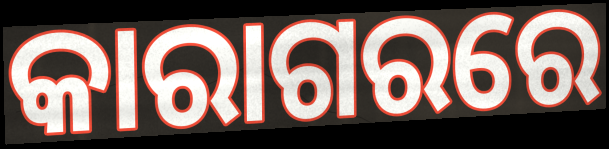
କାରାଗରରେ